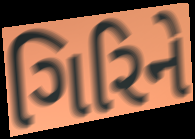
ગિરિને